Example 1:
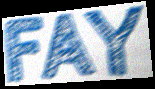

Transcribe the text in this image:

FAY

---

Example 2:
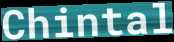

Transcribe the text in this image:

Chintal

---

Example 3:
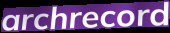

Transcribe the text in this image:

archrecord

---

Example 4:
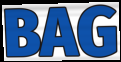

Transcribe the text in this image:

BAG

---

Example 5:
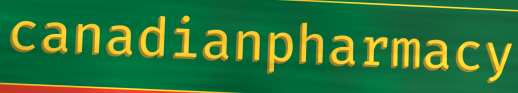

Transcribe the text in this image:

canadianpharmacy